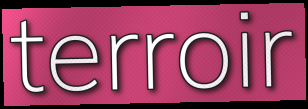
terroir